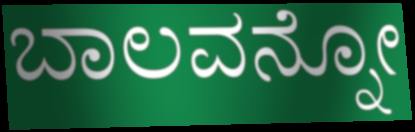
ಬಾಲವನ್ನೋ